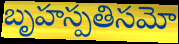
బృహస్పతిసమో